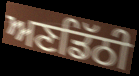
ਅਣਡਿੱਠੀ